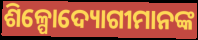
ଶିଳ୍ପୋଦ୍ୟୋଗୀମାନଙ୍କ